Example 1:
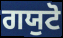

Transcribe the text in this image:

ਗਯੁਟੋ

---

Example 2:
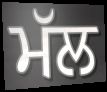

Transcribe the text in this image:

ਮੱਲ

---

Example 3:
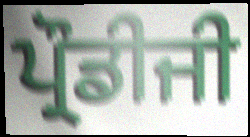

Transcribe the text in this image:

ਪ੍ਰੌਡੀਜੀ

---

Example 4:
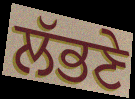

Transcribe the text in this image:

ਲੱਭਣੇ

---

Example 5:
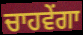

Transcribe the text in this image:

ਚਾਹਵੇਂਗਾ